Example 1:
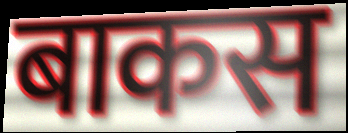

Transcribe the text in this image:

बाकस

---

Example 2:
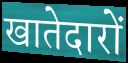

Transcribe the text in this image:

खातेदारों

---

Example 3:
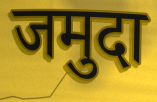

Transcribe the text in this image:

जमुदा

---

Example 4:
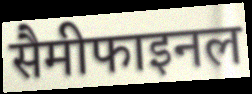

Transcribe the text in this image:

सैमीफाइनल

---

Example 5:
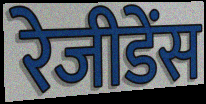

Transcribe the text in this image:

रेजीडेंस